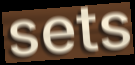
sets